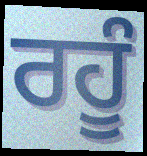
ਰਹੂੰ